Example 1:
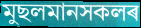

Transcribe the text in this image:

মুছলমানসকলৰ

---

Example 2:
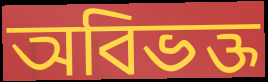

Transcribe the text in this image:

অবিভক্ত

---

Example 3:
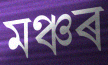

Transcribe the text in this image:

মঞ্চৰ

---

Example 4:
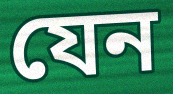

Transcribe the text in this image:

যেন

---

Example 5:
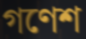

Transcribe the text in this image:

গণেশ